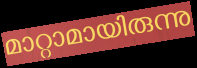
മാറ്റാമായിരുന്നു